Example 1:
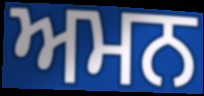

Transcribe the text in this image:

ਅਮਨ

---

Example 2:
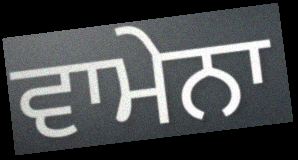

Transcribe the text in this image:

ਵਾਮੇਨਾ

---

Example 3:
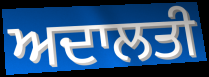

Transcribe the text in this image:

ਅਦਾਲਤੀ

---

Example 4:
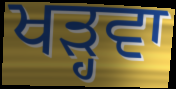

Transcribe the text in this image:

ਖੜ੍ਹਵਾ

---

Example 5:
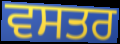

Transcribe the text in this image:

ਵਸਤਰ